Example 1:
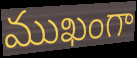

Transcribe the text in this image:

ముఖంగా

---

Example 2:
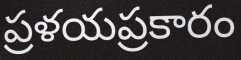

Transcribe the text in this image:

ప్రళయప్రకారం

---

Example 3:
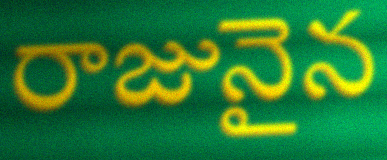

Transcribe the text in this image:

రాజునైన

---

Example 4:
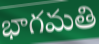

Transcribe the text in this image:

భాగమతి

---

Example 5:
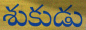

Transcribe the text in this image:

శుకుడు